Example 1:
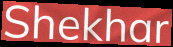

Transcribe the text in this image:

Shekhar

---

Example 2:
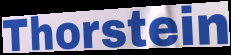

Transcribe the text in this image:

Thorstein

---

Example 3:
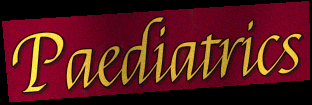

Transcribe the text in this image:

Paediatrics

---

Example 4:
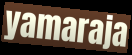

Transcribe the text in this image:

yamaraja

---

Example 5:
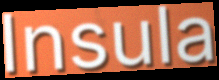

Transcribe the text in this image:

Insula